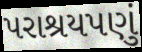
પરાશ્રયપણું